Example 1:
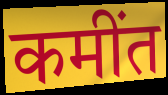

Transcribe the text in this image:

कमींत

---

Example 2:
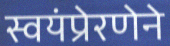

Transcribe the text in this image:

स्वयंप्रेरणेने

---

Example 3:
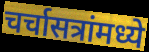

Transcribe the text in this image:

चर्चासत्रांमध्ये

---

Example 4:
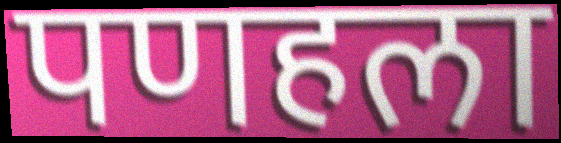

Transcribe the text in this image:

पणहला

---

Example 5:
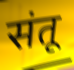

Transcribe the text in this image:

संतू